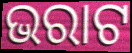
ଭରାଟ